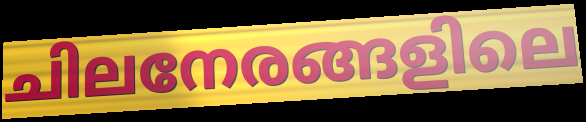
ചിലനേരങ്ങളിലെ